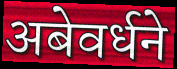
अबेवर्धने